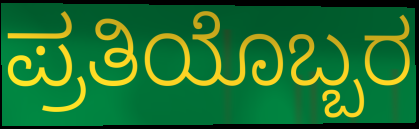
ಪ್ರತಿಯೊಬ್ಬರ